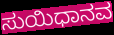
ಸುಯಿಧಾನವ